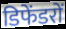
डिफेंडरों